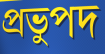
প্রভুপদ